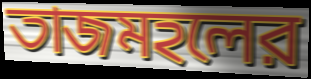
তাজমহলের